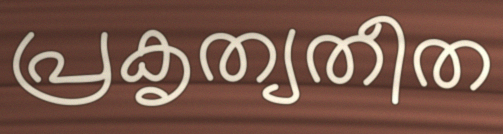
പ്രകൃത്യതീത